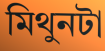
মিথুনটা